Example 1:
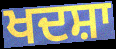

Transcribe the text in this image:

ਖਦਸ਼ਾ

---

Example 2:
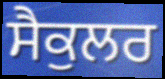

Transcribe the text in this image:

ਸੈਕੁਲਰ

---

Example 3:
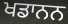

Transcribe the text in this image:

ਖਡਾਨਨ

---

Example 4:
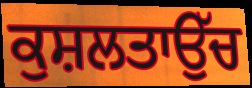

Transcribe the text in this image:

ਕੁਸ਼ਲਤਾਉੱਚ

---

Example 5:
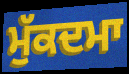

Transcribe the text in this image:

ਮੁੱਕਦਮਾ